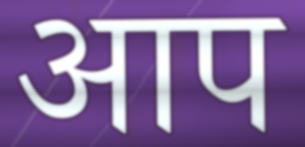
आप